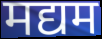
मद्यम